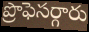
ప్రొఫెసర్గారు